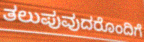
ತಲುಪುವುದರೊಂದಿಗೆ